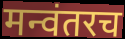
मन्वंतरच